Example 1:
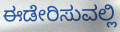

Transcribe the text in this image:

ಈಡೇರಿಸುವಲ್ಲಿ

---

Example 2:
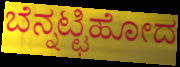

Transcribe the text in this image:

ಬೆನ್ನಟ್ಟಿಹೋದ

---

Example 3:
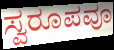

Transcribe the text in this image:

ಸ್ವರೂಪವೂ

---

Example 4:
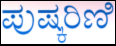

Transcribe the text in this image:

ಪುಷ್ಕರಿಣಿ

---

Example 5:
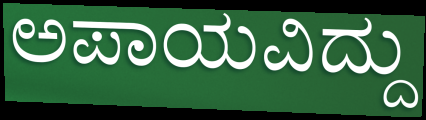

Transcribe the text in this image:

ಅಪಾಯವಿದ್ದು